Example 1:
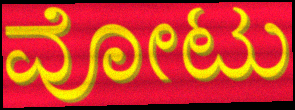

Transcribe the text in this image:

ವೋಟು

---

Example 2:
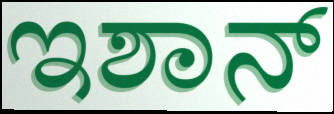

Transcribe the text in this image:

ಇಶಾನ್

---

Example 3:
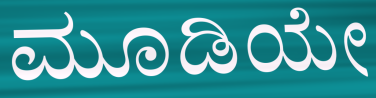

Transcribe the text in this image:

ಮೂಡಿಯೇ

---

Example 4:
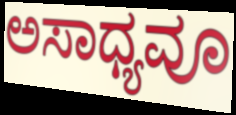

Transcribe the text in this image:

ಅಸಾಧ್ಯವೂ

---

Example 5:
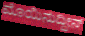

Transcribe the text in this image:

ಮೊಯಿನುದ್ದೀನ್